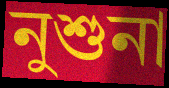
নুশুনা